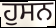
ਹੁਸਨ